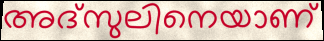
അദ്സുലിനെയാണ്